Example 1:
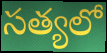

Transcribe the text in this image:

సత్యలో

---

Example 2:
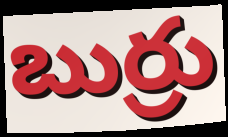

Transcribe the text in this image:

బుర్రు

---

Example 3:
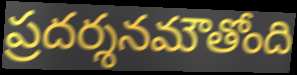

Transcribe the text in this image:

ప్రదర్శనమౌతోంది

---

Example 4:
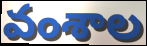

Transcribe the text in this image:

వంశాల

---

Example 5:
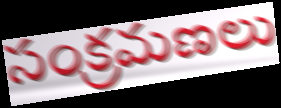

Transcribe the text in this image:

సంక్రమణలు